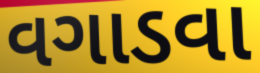
વગાડવા